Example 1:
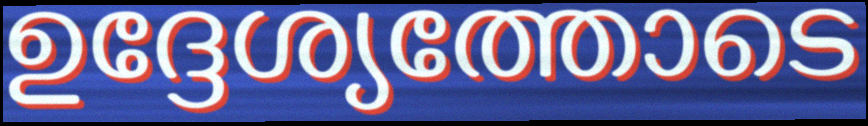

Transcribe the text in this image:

ഉദ്ദേശ്യത്തോടെ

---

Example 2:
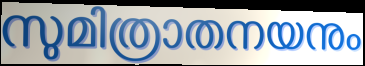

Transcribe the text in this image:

സുമിത്രാതനയനും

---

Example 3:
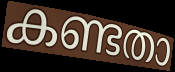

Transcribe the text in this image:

കണ്ടതാ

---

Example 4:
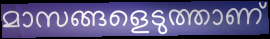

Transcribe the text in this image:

മാസങ്ങളെടുത്താണ്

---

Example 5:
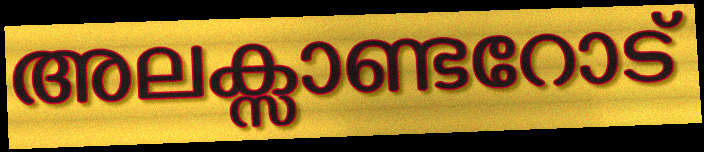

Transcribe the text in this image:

അലക്സാണ്ടറോട്